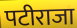
पटीराजा